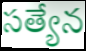
సత్యేన